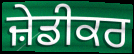
ਜ਼ੇਡੀਕਰ